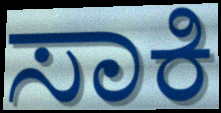
ಸಾಕಿ